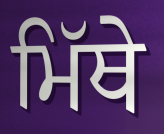
ਮਿੱਥੇ